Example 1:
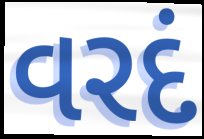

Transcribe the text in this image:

વરદં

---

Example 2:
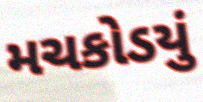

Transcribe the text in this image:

મચકોડયું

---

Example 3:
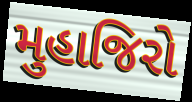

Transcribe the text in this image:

મુહાજિરો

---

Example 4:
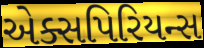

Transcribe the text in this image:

એક્સપિરિયન્સ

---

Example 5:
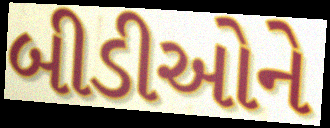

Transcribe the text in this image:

બીડીઓને